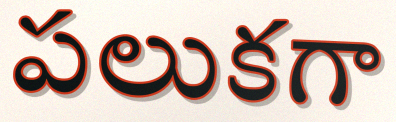
పలుకగా